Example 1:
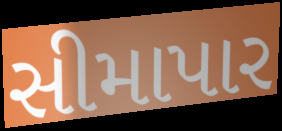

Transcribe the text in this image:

સીમાપાર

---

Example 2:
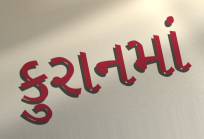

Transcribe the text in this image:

કુરાનમાં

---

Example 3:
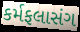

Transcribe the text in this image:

કર્મફલાસંગ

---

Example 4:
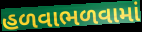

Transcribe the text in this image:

હળવાભળવામાં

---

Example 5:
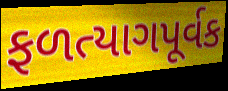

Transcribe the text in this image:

ફળત્યાગપૂર્વક